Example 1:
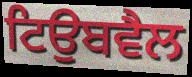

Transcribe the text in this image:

ਟਿਉਬਵੈਲ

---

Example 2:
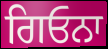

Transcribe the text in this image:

ਗਿਓਨਾ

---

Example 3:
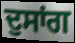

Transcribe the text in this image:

ਦੁਸਾਂਗ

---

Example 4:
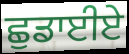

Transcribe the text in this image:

ਛੁਡਾਈਏ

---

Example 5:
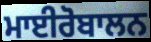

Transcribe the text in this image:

ਮਾਈਰੋਬਾਲਨ